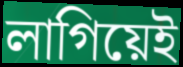
লাগিয়েই